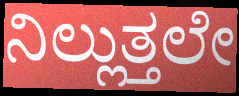
ನಿಲ್ಲುತ್ತಲೇ